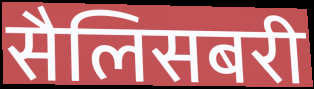
सैलिसबरी